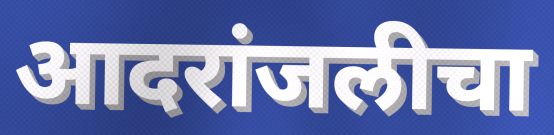
आदरांजलीचा